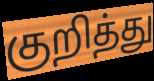
குறித்து